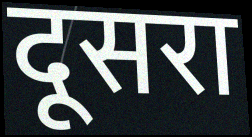
दूसरा